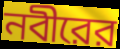
নবীরের